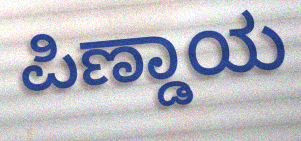
ಪಿಣ್ಡಾಯ